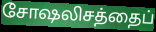
சோஷலிசத்தைப்